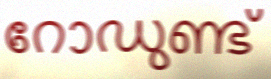
റോഡുണ്ട്